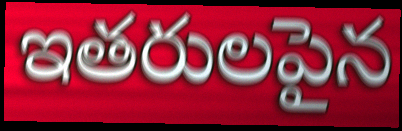
ఇతరులపైన